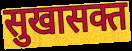
सुखासक्त